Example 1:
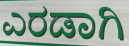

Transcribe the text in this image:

ಎರಡಾಗಿ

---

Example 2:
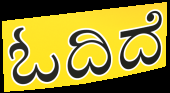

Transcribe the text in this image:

ಓದಿದೆ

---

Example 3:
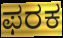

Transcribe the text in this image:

ಫರಕ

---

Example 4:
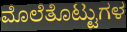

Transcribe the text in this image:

ಮೊಲೆತೊಟ್ಟುಗಳ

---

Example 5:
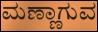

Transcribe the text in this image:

ಮಣ್ಣಾಗುವ